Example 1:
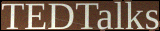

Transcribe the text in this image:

TEDTalks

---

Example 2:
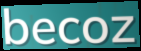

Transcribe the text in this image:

becoz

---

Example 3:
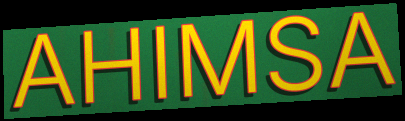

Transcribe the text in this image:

AHIMSA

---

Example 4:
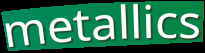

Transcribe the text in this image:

metallics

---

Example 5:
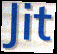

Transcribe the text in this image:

Jit